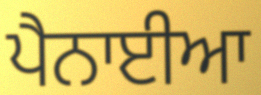
ਪੈਨਾਈਆ